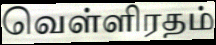
வெள்ளிரதம்